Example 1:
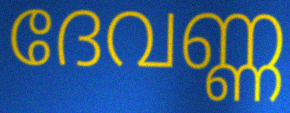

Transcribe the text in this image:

ദേവണ്ണ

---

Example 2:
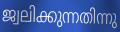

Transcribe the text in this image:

ജ്വലിക്കുന്നതിന്നു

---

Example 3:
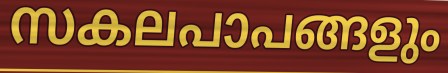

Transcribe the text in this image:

സകലപാപങ്ങളും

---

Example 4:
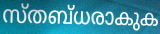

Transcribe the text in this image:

സ്തബ്ധരാകുക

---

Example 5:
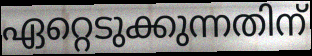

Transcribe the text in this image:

ഏറ്റെടുക്കുന്നതിന്